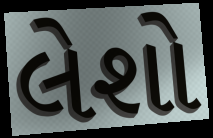
લેશો